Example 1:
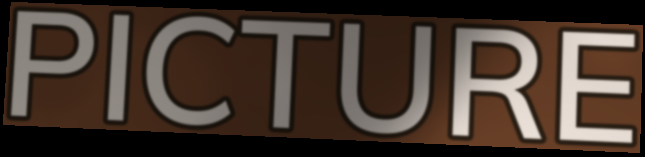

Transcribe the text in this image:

PICTURE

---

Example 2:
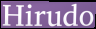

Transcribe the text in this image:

Hirudo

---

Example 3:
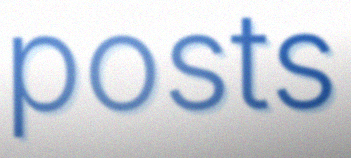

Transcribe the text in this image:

posts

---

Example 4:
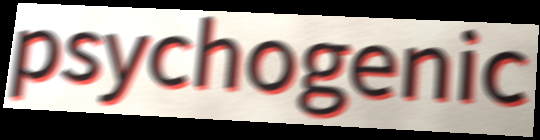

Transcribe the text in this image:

psychogenic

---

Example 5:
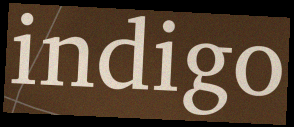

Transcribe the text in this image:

indigo